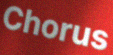
Chorus